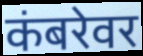
कंबरेवर